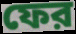
ফের